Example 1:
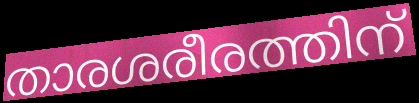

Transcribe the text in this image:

താരശരീരത്തിന്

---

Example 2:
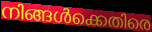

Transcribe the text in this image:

നിങ്ങൾക്കെതിരെ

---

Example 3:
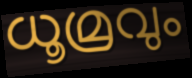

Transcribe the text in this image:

ധൂമ്രവും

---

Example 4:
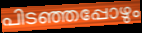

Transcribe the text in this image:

പിടഞ്ഞപ്പോഴും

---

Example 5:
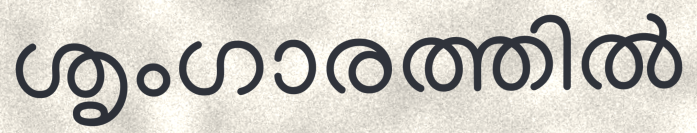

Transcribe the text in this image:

ശൃംഗാരത്തിൽ